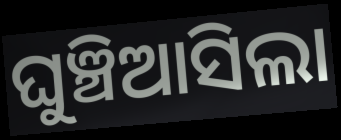
ଘୁଞ୍ଚିଆସିଲା